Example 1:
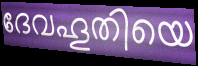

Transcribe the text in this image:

ദേവഹൂതിയെ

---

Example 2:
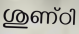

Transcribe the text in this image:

ശുണ്‌ഠി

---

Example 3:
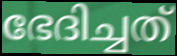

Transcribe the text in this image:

ഭേദിച്ചത്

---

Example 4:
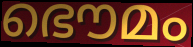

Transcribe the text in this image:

ഭൌമം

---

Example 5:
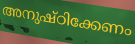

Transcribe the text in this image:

അനുഷ്ഠിക്കേണം